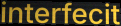
interfecit